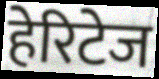
हेरिटेज